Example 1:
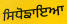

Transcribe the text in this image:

ਸਿਧੋਙਾਇਆ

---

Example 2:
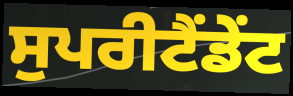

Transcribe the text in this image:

ਸੁਪਰੀਟੈਂਡੇਂਟ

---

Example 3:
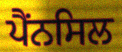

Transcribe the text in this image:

ਪੈਂਨਸਿਲ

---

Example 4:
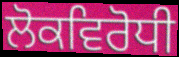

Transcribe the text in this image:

ਲੋਕਵਿਰੋਧੀ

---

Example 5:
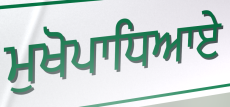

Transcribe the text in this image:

ਮੁਖੋਪਾਧਿਆਏ